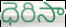
ధెరిసా